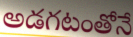
అడగటంతోనే